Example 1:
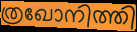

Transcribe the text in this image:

ത്രഖോനിത്തി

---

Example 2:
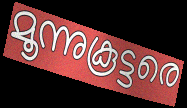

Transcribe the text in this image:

മൂന്നുകൂട്ടരെ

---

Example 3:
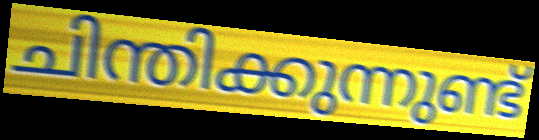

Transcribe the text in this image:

ചിന്തിക്കുന്നുണ്ട്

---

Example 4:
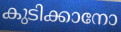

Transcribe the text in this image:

കുടിക്കാനോ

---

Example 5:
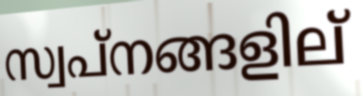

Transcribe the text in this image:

സ്വപ്നങ്ങളില്